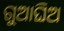
ଗୁଆଘିଅ